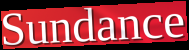
Sundance